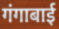
गंगाबाई